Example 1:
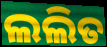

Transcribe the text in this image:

ଲଲିତ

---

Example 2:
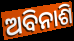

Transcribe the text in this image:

ଅବିନାଶି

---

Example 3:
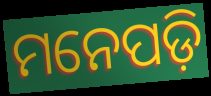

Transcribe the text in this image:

ମନେପଡ଼ି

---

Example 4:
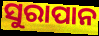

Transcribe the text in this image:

ସୁରାପାନ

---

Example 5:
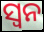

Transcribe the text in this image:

ସ୍ୱନ